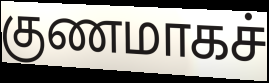
குணமாகச்